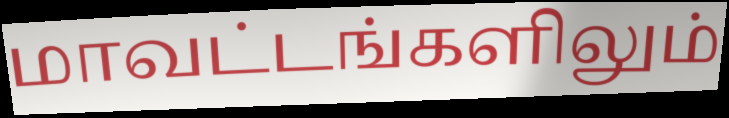
மாவட்டங்களிலும்